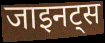
जाइनट्स